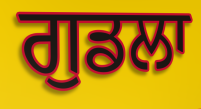
ਗੁਡਲਾ